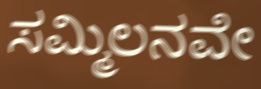
ಸಮ್ಮಿಲನವೇ